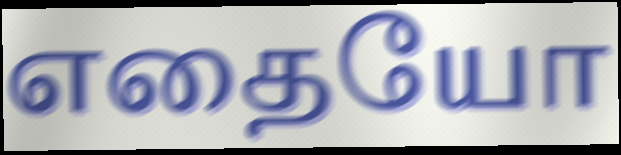
எதையோ